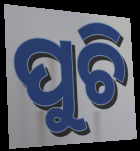
ପୁଚି